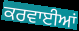
ਕਰਵਾਈਆਂ